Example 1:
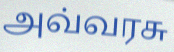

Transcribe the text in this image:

அவ்வரசு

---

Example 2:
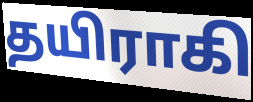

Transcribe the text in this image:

தயிராகி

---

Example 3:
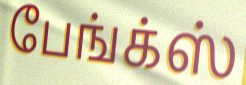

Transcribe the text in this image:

பேங்க்ஸ்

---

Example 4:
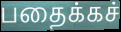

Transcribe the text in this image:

பதைக்கச்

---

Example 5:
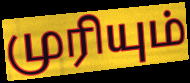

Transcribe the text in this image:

முரியும்